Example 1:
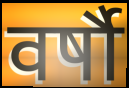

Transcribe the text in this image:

वर्षौ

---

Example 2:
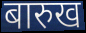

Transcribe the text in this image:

बारुख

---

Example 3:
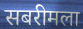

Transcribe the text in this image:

सबरीमला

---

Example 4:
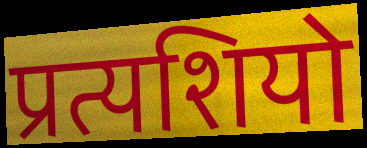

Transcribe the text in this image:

प्रत्यशियो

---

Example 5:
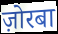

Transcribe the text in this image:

ज़ोरबा